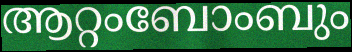
ആറ്റംബോംബും